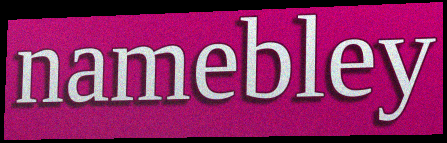
namebley